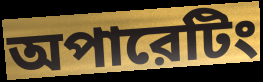
অপারেটিং